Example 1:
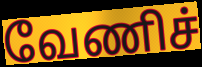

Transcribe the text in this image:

வேணிச்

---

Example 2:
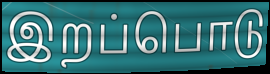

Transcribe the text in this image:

இறப்பொடு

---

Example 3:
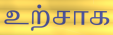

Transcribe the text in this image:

உற்சாக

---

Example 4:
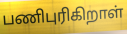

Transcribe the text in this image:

பணிபுரிகிறாள்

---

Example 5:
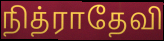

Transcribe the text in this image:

நித்ராதேவி